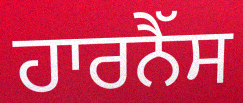
ਹਾਰਨੈੱਸ